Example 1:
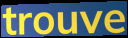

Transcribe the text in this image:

trouve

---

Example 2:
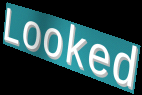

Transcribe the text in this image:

Looked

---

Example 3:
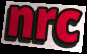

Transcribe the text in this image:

nrc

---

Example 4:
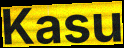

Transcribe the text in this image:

Kasu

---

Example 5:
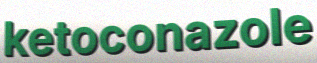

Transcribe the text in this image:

ketoconazole